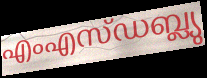
എംഎസ്ഡബ്ല്യു